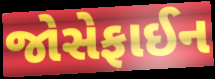
જોસેફાઈન